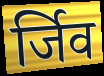
र्जिव